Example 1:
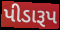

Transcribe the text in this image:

પીડારૂપ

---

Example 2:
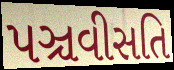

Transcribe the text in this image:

પઞ્ચવીસતિ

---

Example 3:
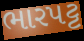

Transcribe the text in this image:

ભારપટ્ટ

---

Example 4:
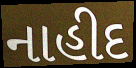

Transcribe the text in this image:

નાહીદ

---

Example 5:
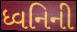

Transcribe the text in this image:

ધ્વનિની